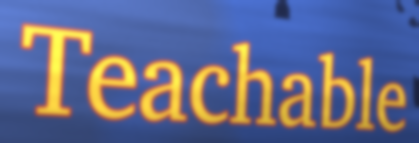
Teachable